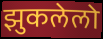
झुकलेलो